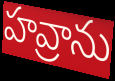
హవ్రాను